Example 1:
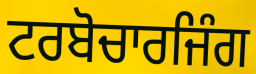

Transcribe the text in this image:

ਟਰਬੋਚਾਰਜਿੰਗ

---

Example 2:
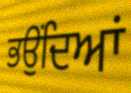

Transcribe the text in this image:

ਭਉਂਦਿਆਂ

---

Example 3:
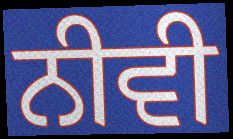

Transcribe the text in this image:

ਨੀਵੀ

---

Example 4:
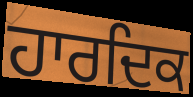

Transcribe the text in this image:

ਹਾਰਦਿਕ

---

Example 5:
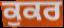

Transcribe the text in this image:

ਕੁਕਰ